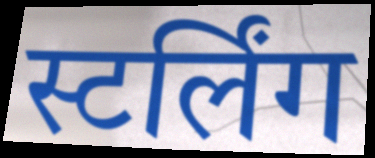
स्टर्लिंग